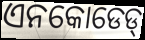
ଏନକୋଡେଡ୍